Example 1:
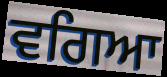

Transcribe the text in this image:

ਵਗਿਆ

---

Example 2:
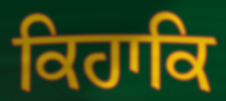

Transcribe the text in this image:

ਕਿਹਾਕਿ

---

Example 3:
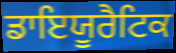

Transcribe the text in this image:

ਡਾਇਯੂਰੈਟਿਕ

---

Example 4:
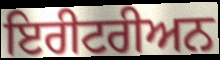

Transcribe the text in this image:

ਇਰੀਟਰੀਅਨ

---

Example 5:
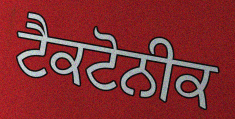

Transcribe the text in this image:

ਟੈਕਟੋਨੀਕ